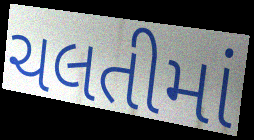
ચલતીમાં